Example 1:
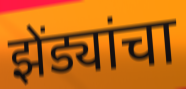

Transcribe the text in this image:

झेंड्यांचा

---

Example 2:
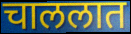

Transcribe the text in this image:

चाललात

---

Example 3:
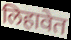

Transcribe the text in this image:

लिहावेत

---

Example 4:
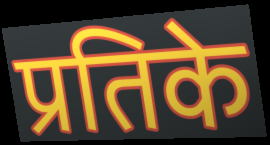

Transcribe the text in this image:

प्रतिके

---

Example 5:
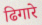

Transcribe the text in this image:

ढिगारे